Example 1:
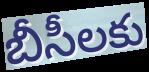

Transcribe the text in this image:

బీసీలకు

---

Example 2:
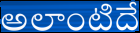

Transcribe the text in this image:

అలాంటిదే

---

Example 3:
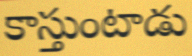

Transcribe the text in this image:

కాస్తుంటాడు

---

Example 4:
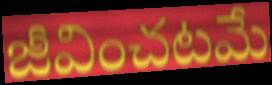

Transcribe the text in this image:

జీవించటమే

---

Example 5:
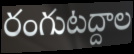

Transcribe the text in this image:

రంగుటద్దాల